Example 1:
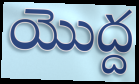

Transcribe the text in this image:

యొద్ద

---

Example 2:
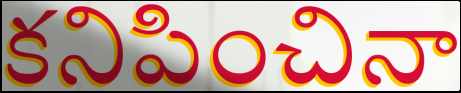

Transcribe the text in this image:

కనిపించినా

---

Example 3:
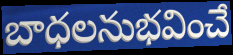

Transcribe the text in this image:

బాధలనుభవించే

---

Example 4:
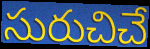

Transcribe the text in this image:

సురుచిచే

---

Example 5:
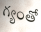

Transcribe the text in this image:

గ్యంతో